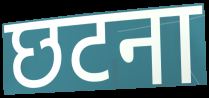
छटना